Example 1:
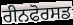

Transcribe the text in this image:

ਰੀਨਫੋਰਸਡ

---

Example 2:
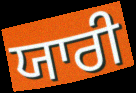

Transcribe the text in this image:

ਯਾਰੀ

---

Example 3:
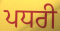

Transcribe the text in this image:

ਪਧਰੀ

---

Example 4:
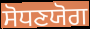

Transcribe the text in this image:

ਸੋਧਣਯੋਗ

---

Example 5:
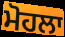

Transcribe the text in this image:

ਮੋਹਲਾ